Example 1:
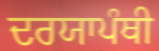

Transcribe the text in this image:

ਦਰਯਾਪੰਥੀ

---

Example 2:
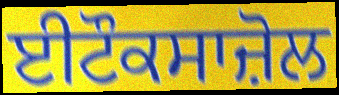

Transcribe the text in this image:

ਈਟੌਕਸਾਜ਼ੋਲ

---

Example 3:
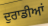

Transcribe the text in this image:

ਦੁਰਾਡੀਆਂ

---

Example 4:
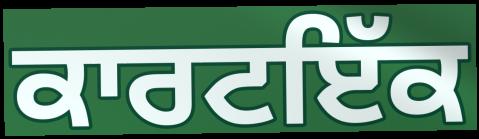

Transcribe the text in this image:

ਕਾਰਟਇੱਕ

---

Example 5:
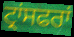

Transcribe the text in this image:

ਟ੍ਰਾਂਸਫਰਾਂ